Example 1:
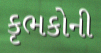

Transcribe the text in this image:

કૃભકોની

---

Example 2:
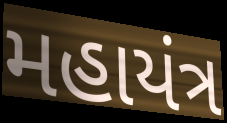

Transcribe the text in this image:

મહાયંત્ર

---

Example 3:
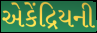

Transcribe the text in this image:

એકેંદ્રિયની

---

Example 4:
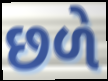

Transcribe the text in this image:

છળે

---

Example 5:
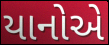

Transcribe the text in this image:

યાનોએ